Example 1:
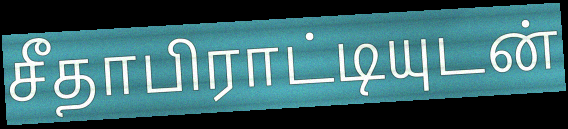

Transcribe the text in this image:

சீதாபிராட்டியுடன்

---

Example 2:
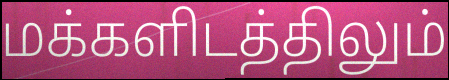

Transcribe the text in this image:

மக்களிடத்திலும்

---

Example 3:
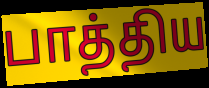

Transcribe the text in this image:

பாத்திய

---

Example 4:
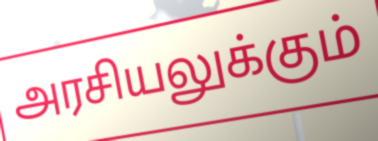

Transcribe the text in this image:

அரசியலுக்கும்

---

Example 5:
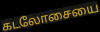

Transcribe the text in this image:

கடலோசையை